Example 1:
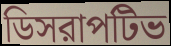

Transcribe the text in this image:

ডিসরাপটিভ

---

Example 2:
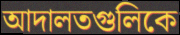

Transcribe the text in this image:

আদালতগুলিকে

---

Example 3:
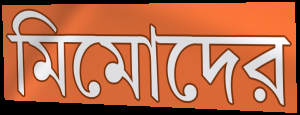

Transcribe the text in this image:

মিমোদের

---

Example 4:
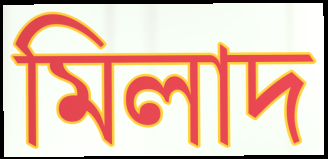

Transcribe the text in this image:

মিলাদ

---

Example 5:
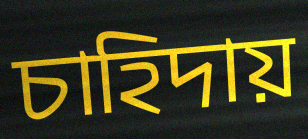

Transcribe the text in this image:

চাহিদায়